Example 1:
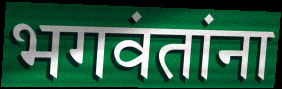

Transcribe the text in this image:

भगवंतांना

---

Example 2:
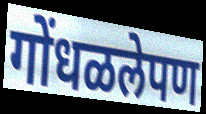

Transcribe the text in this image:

गोंधळलेपण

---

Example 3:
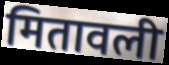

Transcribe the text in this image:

मितावली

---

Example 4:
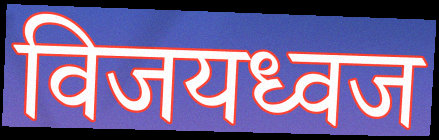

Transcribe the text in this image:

विजयध्वज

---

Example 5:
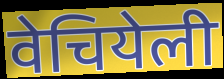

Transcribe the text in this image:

वेचियेली